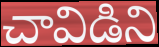
చావిడిని